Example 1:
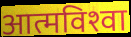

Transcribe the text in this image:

आत्मविश्वा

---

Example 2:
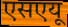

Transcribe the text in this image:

एसएयू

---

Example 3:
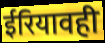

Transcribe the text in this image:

ईरियावही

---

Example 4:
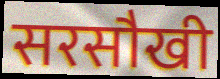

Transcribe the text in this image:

सरसौखी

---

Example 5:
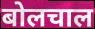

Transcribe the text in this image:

बोलचाल